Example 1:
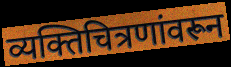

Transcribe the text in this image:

व्यक्तिचित्रणांवरून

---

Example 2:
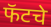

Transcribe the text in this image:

फॅटचे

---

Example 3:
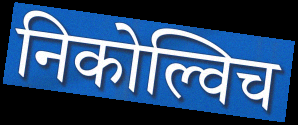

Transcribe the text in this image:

निकोल्विच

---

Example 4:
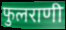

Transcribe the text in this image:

फुलराणी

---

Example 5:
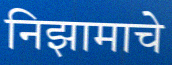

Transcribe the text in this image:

निझामाचे